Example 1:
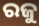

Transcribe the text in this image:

ରଜୁ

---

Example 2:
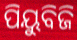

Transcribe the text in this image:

ପିୟୁବିଜି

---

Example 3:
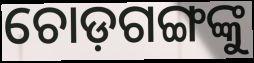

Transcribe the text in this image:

ଚୋଡ଼ଗଙ୍ଗଙ୍କୁ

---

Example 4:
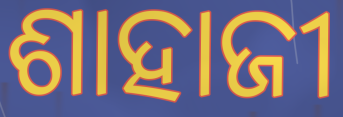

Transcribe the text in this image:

ଶାହାଜୀ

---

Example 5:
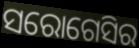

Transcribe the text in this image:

ସରୋଗେସିର